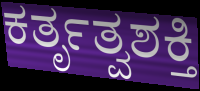
ಕರ್ತೃತ್ವಶಕ್ತಿ